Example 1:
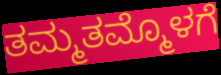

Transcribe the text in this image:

ತಮ್ಮತಮ್ಮೊಳಗೆ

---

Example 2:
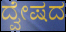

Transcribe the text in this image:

ದ್ವೇಷದ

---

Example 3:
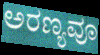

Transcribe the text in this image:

ಅರಣ್ಯವೂ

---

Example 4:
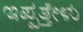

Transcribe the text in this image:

ಇಪ್ಪತ್ತೇಳು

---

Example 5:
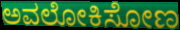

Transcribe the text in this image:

ಅವಲೋಕಿಸೋಣ